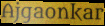
Ajgaonkar